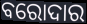
ବରୋଦାର